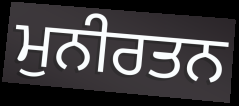
ਮੁਨੀਰਤਨ